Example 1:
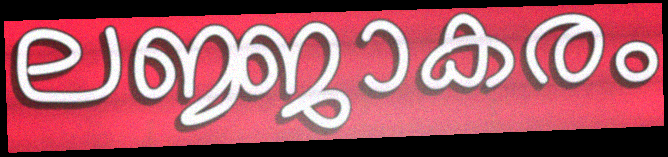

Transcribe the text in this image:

ലജ്ജാകരം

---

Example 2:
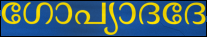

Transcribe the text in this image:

ഗോപ്യാദദേ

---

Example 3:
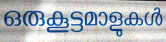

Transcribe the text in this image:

ഒരുകൂട്ടമാളുകൾ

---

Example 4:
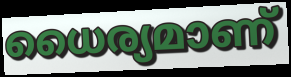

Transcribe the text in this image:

ധൈര്യമാണ്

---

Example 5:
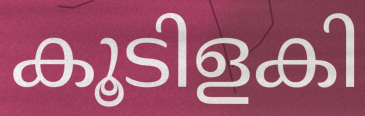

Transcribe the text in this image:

കൂടിളകി